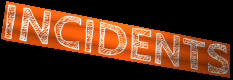
INCIDENTS